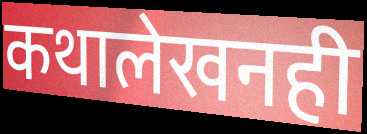
कथालेखनही